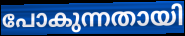
പോകുന്നതായി